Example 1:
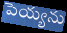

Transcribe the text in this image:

పెయ్యను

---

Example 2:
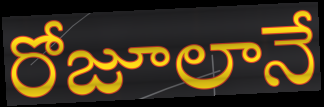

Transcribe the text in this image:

రోజూలానే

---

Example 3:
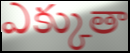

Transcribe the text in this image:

ఎక్కుతా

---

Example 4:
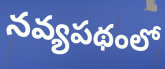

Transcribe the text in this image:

నవ్యపథంలో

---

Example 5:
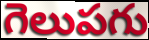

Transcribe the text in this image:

గెలుపగు